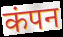
कंपन